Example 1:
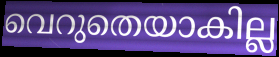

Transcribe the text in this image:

വെറുതെയാകില്ല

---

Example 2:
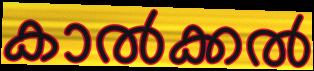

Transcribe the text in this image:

കാൽക്കൽ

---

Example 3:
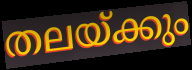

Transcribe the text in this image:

തലയ്ക്കും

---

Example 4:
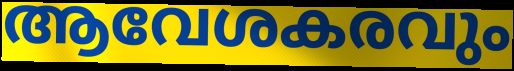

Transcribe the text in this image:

ആവേശകരവും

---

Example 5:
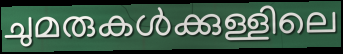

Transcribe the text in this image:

ചുമരുകൾക്കുള്ളിലെ